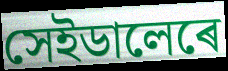
সেইডালেৰে